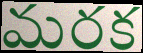
మరక